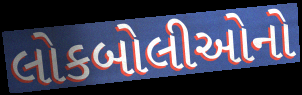
લોકબોલીઓનો